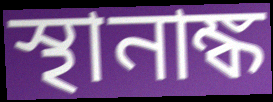
স্থানাঙ্ক